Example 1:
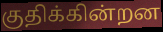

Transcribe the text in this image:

குதிக்கின்றன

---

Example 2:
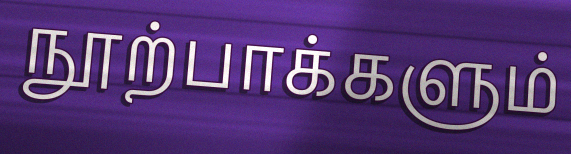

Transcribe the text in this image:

நூற்பாக்களும்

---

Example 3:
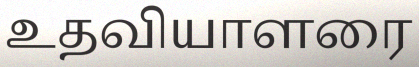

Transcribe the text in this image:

உதவியாளரை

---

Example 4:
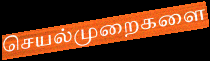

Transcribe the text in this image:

செயல்முறைகளை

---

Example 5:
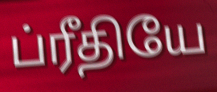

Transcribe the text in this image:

ப்ரீதியே